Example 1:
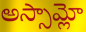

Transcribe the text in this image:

అస్సామ్లో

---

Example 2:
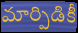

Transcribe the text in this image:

మార్పిడికీ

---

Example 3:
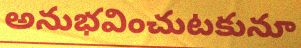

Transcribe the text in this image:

అనుభవించుటకునూ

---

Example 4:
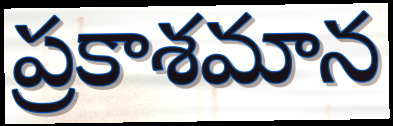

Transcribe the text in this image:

ప్రకాశమాన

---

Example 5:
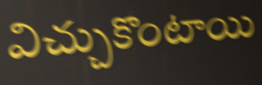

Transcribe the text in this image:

విచ్చుకొంటాయి